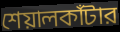
শেয়ালকাঁটার